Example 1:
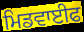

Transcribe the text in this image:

ਮਿਡਵਾਈਫ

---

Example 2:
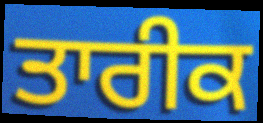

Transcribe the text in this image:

ਤਾਰੀਕ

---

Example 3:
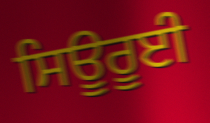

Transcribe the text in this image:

ਸਿਊਰੂਈ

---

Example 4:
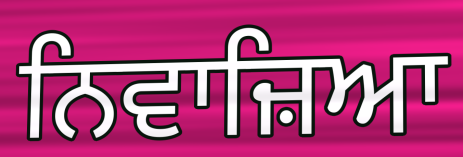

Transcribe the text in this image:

ਨਿਵਾਜ਼ਿਆ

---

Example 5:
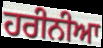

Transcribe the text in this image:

ਹਰੀਨੀਆ